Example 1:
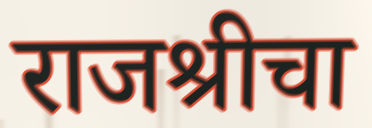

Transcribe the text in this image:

राजश्रीचा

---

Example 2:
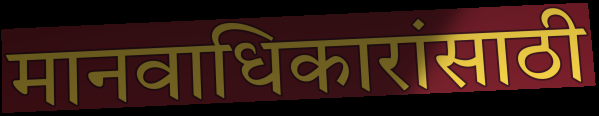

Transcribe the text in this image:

मानवाधिकारांसाठी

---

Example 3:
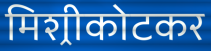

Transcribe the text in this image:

मिश्रीकोटकर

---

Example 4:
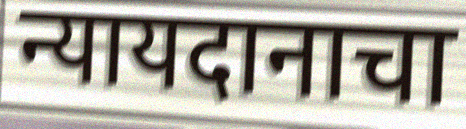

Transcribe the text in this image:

न्यायदानाचा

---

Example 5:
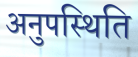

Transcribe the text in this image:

अनुपस्थिति